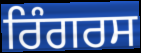
ਰਿੰਗਰਸ